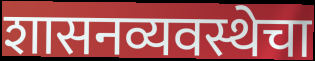
शासनव्यवस्थेचा